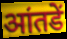
आंतडें